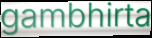
gambhirta